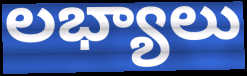
లభ్యాలు